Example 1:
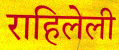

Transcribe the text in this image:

राहिलेली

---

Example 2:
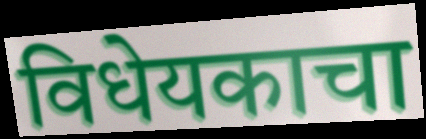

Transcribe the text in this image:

विधेयकाचा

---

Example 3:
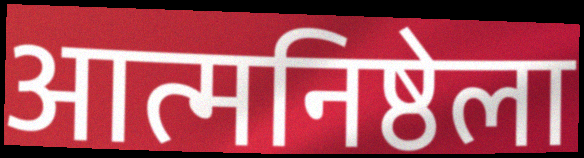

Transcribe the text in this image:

आत्मनिष्ठेला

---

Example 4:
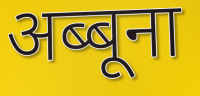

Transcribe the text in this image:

अब्बूना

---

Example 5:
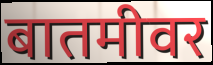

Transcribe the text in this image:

बातमीवर